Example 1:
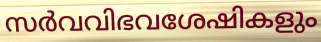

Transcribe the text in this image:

സർവവിഭവശേഷികളും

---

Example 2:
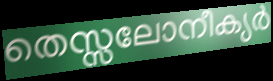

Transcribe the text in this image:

തെസ്സലോനീക്യർ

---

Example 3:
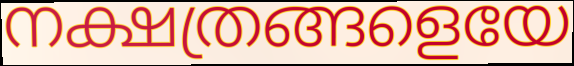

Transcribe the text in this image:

നക്ഷത്രങ്ങളെയേ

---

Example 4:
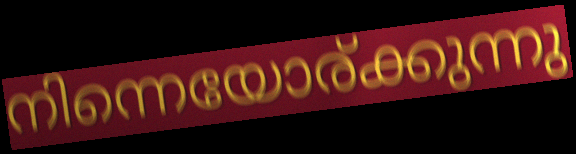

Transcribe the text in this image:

നിന്നെയോര്ക്കുന്നു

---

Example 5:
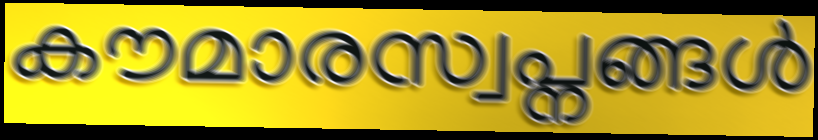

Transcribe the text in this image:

കൗമാരസ്വപ്നങ്ങൾ